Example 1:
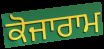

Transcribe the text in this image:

ਕੋਜਾਰਾਮ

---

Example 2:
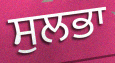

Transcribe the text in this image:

ਸੁਲਭਾ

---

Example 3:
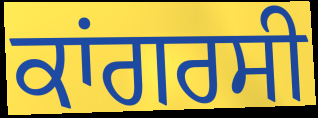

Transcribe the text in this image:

ਕਾਂਗਰਸੀ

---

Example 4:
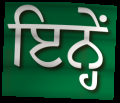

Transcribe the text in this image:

ਇਨ੍ਹੇਂ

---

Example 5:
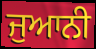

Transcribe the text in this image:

ਜੁਆਨੀ